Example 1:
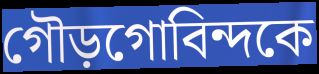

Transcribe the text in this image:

গৌড়গোবিন্দকে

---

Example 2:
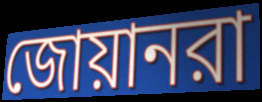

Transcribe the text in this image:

জোয়ানরা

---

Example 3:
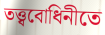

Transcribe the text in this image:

তত্ত্ববোধিনীতে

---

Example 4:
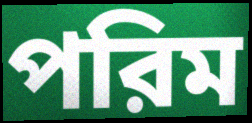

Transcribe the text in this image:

পরিম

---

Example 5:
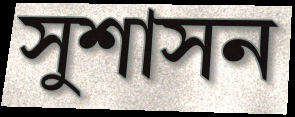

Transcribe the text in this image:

সুশাসন